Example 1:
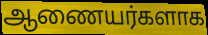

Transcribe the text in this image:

ஆணையர்களாக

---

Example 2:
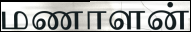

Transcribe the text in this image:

மணாளன்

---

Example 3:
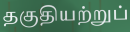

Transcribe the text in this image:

தகுதியற்றுப்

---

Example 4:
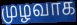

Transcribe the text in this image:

முழவாக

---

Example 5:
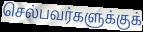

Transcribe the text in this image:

செல்பவர்களுக்குக்